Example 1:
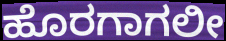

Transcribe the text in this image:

ಹೊರಗಾಗಲೀ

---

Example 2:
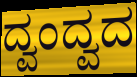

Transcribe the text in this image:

ದ್ವಂದ್ವದ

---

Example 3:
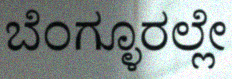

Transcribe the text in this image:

ಬೆಂಗ್ಳೂರಲ್ಲೇ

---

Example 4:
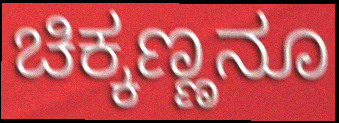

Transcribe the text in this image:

ಚಿಕ್ಕಣ್ಣನೂ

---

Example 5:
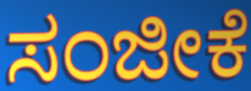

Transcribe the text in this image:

ಸಂಜೀಕೆ